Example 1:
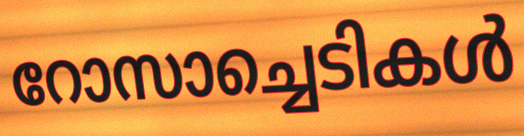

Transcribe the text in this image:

റോസാച്ചെടികൾ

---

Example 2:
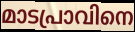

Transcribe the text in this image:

മാടപ്രാവിനെ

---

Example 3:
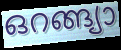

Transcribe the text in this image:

ഒറങ്ങ്യാ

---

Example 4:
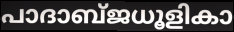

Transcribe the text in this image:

പാദാബ്ജധൂളികാ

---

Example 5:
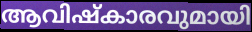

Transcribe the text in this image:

ആവിഷ്കാരവുമായി